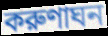
করুণাঘন